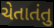
ચેતાતંતુ